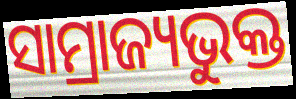
ସାମ୍ରାଜ୍ୟଭୁକ୍ତ